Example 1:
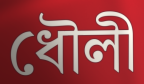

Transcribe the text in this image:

ধৌলী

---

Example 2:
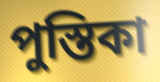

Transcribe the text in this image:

পুস্তিকা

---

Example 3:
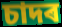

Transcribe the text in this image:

চাদৰ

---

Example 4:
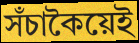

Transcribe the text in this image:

সঁচাকৈয়েই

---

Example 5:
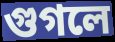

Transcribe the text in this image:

গুগলে